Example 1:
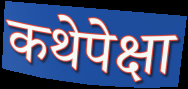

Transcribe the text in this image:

कथेपेक्षा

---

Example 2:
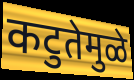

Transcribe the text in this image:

कटुतेमुळे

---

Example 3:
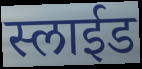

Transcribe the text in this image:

स्लाईड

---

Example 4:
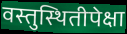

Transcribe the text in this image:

वस्तुस्थितीपेक्षा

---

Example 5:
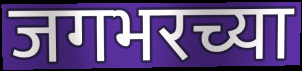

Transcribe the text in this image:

जगभरच्या